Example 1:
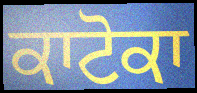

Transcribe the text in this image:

ਕਾਟੋਕਾ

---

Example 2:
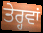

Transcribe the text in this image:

ਤੇਰ੍ਹਵਾਂ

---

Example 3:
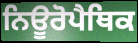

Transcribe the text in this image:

ਨਿਊਰੋਪੈਥਿਕ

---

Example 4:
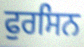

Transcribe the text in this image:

ਫੁਰਸਿਨ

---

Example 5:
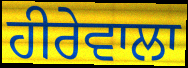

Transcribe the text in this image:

ਹੀਰੇਵਾਲਾ